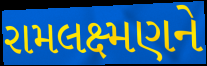
રામલક્ષ્મણને